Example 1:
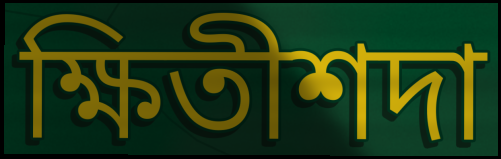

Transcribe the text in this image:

ক্ষিতীশদা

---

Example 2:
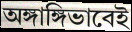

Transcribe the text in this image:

অঙ্গাঙ্গিভাবেই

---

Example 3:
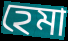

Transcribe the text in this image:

হেমা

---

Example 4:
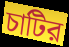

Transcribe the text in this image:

চাটির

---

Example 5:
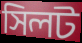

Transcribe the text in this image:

সিলট